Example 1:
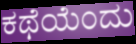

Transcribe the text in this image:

ಕಥೆಯೆಂದು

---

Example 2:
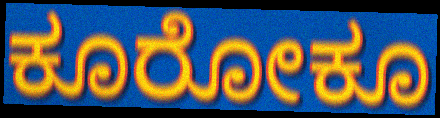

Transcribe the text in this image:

ಕೂರೋಕೂ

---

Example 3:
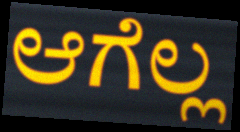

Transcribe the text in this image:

ಆಗೆಲ್ಲ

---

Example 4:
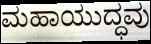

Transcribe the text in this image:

ಮಹಾಯುದ್ಧವು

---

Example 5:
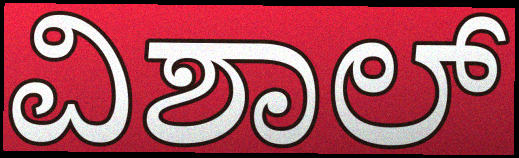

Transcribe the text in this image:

ವಿಶಾಲ್